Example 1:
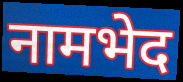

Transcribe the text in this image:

नामभेद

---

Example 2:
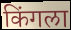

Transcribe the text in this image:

किंगला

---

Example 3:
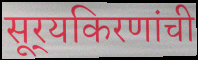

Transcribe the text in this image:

सूर्यकिरणांची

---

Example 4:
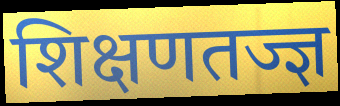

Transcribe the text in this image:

शिक्षणतज्ज्ञ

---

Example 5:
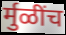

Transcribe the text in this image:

र्मुळींच